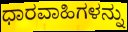
ಧಾರವಾಹಿಗಳನ್ನು